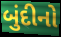
બુંદીનો